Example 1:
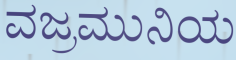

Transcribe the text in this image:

ವಜ್ರಮುನಿಯ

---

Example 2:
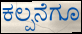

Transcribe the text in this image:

ಕಲ್ಪನೆಗೂ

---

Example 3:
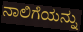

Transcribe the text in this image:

ನಾಲಿಗೆಯನ್ನು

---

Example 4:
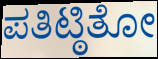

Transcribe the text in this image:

ಪತಿಟ್ಠಿತೋ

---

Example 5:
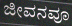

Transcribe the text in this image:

ಜೀವನವೂ